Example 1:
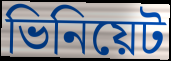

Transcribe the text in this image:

ভিনিয়েট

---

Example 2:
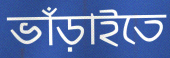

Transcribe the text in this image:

ভাঁড়াইতে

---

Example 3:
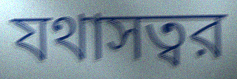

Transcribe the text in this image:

যথাসত্বর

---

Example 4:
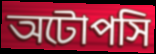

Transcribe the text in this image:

অটোপসি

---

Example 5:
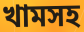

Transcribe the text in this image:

খামসহ